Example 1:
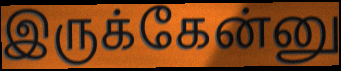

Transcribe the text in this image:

இருக்கேன்னு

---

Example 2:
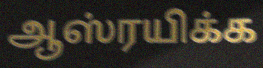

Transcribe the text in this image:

ஆஸ்ரயிக்க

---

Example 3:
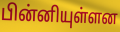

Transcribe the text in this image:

பின்னியுள்ளன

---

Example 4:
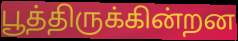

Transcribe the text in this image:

பூத்திருக்கின்றன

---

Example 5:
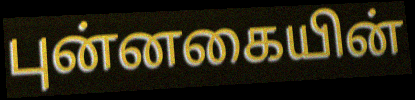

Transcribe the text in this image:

புன்னகையின்